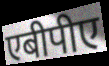
एबीपीए